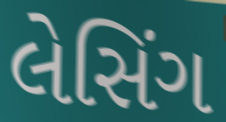
લેસિંગ